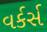
વર્કર્સ